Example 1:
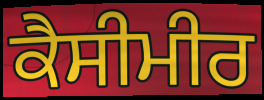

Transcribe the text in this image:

ਕੈਸੀਮੀਰ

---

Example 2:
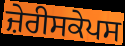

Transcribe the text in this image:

ਜ਼ੇਰੀਸਕੇਪਸ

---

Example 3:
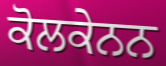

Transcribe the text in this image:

ਕੋਲਕੇਨਨ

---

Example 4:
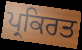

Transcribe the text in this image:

ਪ੍ਰਕਿਰਤ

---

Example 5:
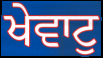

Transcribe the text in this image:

ਖੇਵਾਟੁ